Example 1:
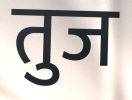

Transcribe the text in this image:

तुज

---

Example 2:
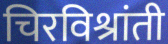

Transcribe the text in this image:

चिरविश्रांती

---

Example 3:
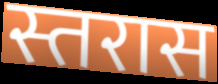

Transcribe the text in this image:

स्तरास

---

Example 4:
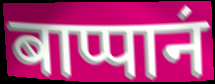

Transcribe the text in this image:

बाप्पानं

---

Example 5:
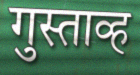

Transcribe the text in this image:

गुस्ताव्ह